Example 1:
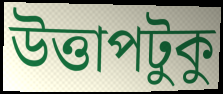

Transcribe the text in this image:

উত্তাপটুকু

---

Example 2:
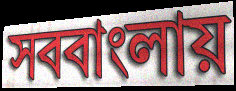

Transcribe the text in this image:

সববাংলায়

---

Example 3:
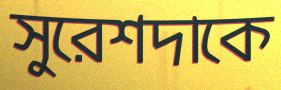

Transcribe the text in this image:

সুরেশদাকে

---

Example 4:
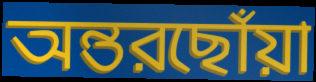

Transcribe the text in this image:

অন্তরছোঁয়া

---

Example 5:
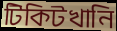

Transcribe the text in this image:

টিকিটখানি